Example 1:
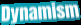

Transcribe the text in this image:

Dynamism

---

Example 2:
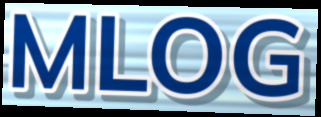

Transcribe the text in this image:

MLOG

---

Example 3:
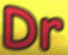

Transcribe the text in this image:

Dr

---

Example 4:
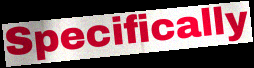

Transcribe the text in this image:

Specifically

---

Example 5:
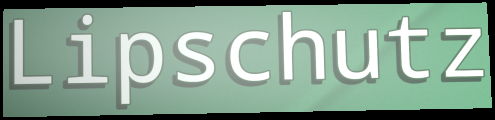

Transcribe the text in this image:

Lipschutz